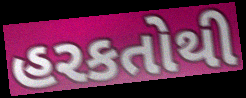
હરકતોથી